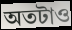
অতটাও